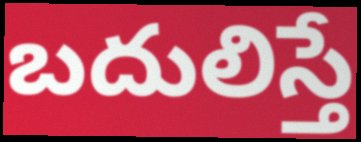
బదులిస్తే